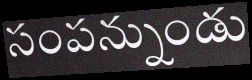
సంపన్నుండు